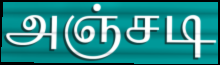
அஞ்சடி